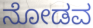
ನೋಡವ